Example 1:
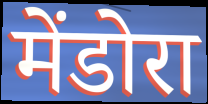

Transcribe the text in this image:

मेंडोरा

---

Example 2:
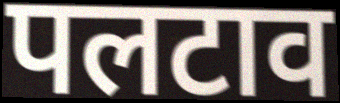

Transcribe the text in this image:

पलटाव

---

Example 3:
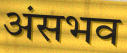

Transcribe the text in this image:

अंसभव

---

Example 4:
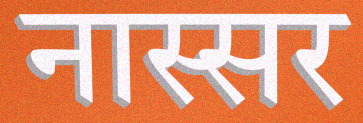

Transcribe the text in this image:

नास्सर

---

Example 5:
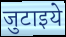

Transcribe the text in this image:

जुटाइये